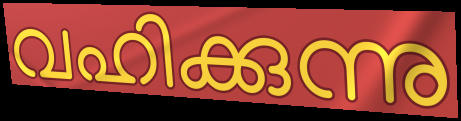
വഹിക്കുന്നു